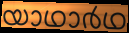
യാഥാർഥ